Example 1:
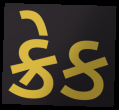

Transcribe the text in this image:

ક્રેક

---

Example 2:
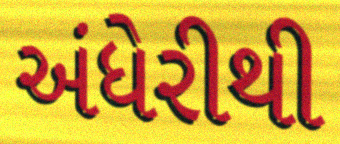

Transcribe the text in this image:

અંધેરીથી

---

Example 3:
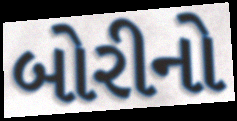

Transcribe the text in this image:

બોરીનો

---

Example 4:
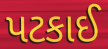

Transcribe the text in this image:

પટકાઈ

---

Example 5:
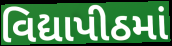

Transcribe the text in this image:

વિદ્યાપીઠમાં